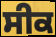
ਸੀਕ